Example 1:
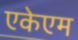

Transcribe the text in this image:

एकेएम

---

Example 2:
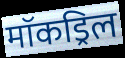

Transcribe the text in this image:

मॉकड्रिल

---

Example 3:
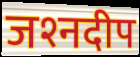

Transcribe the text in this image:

जश्नदीप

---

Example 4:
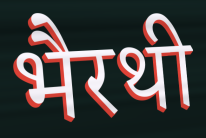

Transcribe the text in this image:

भैरथी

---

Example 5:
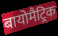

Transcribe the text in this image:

बायोमैट्रिक